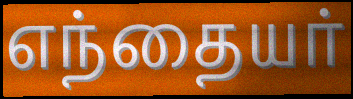
எந்தையர்